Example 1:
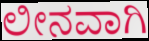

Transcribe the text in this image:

ಲೀನವಾಗಿ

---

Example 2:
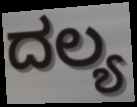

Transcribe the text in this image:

ದಲ್ಯ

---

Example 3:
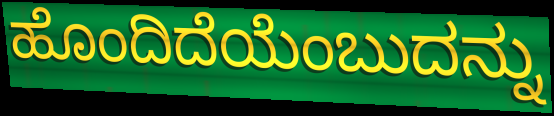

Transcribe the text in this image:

ಹೊಂದಿದೆಯೆಂಬುದನ್ನು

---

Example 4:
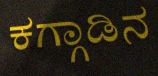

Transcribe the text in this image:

ಕಗ್ಗಾಡಿನ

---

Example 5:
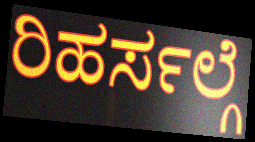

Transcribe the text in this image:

ರಿಹರ್ಸಲ್ಗೆ